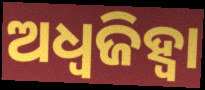
ଅଧ୍ୱଜିହ୍ବା